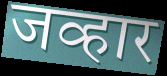
जव्हार